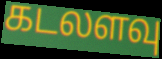
கடலளவு